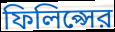
ফিলিপ্সের